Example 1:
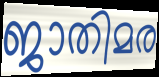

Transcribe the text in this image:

ജാതിമര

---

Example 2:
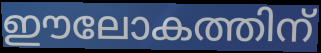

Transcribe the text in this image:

ഈലോകത്തിന്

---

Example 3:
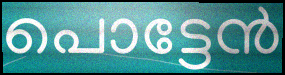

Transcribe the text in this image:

പൊട്ടേൻ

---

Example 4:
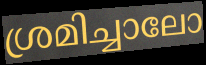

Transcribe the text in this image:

ശ്രമിച്ചാലോ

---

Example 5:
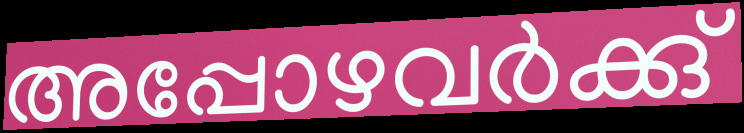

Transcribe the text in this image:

അപ്പോഴവർക്കു്